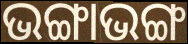
ଭଙ୍ଗାଭଙ୍ଗ